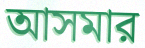
আসমার